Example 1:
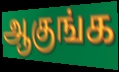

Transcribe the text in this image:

ஆகுங்க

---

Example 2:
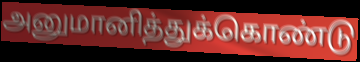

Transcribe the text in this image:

அனுமானித்துக்கொண்டு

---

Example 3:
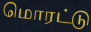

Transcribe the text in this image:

மொரட்டு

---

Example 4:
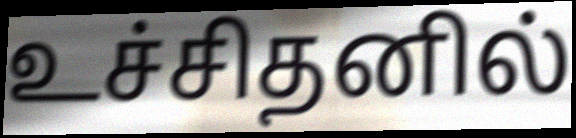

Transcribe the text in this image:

உச்சிதனில்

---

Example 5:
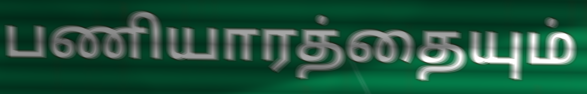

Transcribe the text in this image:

பணியாரத்தையும்